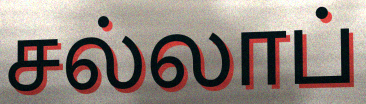
சல்லாப்